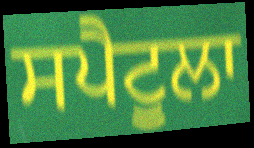
ਸਪੈਟੂਲਾ